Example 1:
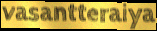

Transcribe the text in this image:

vasantteraiya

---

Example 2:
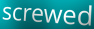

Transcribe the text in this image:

screwed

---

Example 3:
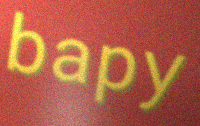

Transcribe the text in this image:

bapy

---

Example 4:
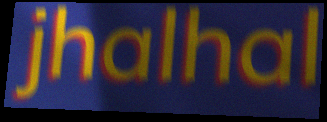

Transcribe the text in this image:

jhalhal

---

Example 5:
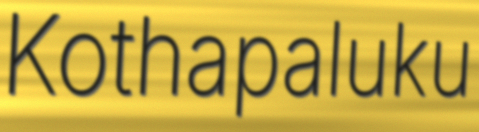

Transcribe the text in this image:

Kothapaluku